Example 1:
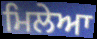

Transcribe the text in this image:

ਮਿਲੇਆ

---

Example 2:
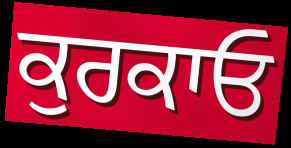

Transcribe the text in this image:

ਕੁਰਕਾਓ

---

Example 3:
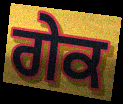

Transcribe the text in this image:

ਗੇਕ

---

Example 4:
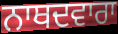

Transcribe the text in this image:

ਨਾਥਦਵਾਰਾ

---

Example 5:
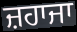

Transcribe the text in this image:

ਜ਼ਹਾਜਾ